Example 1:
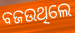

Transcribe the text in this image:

ବଜଉଥିଲେ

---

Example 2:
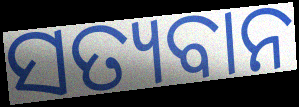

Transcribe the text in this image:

ସତ୍ୟବାନ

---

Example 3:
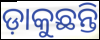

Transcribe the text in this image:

ଡ଼ାକୁଛନ୍ତି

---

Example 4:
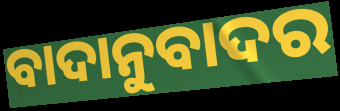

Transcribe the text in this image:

ବାଦାନୁବାଦର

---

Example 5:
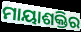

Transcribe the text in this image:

ମାୟାଶକ୍ତିର